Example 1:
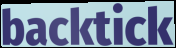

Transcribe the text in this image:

backtick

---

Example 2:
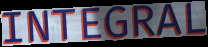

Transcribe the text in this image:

INTEGRAL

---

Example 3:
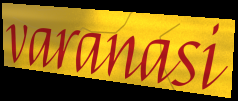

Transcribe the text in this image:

varanasi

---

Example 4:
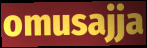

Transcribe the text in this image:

omusajja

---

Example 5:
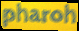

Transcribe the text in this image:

pharoh